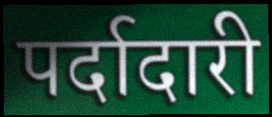
पर्दादारी